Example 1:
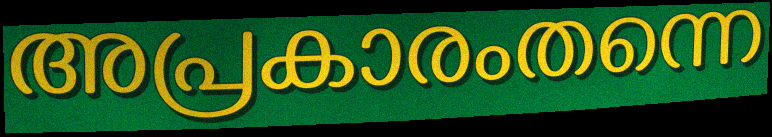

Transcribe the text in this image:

അപ്രകാരംതന്നെ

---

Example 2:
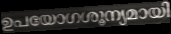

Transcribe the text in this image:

ഉപയോഗശൂന്യമായി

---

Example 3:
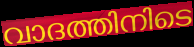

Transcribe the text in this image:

വാദത്തിനിടെ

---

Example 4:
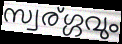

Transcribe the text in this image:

സ്വര്ഗ്ഗവും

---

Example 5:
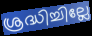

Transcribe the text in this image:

ശ്രദ്ധിച്ചില്ലേ